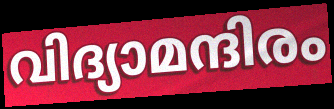
വിദ്യാമന്ദിരം